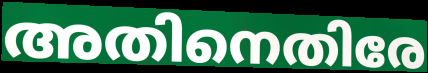
അതിനെതിരേ